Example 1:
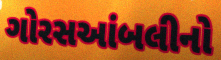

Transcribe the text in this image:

ગોરસઆંબલીનો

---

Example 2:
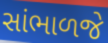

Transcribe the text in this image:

સાંભાળજે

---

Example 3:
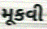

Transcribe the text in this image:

મૂકવી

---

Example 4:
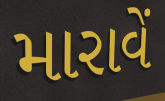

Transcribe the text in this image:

મારાવેં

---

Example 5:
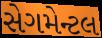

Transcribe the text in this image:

સેગમેન્ટલ